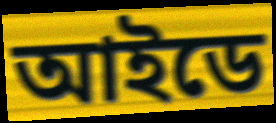
আইডে